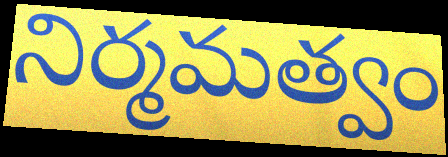
నిర్మమత్వం